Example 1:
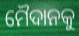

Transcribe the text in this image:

ମୈଦାନକୁ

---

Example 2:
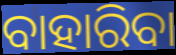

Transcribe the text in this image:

ବାହାରିବା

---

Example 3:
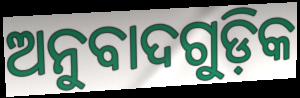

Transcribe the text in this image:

ଅନୁବାଦଗୁଡ଼ିକ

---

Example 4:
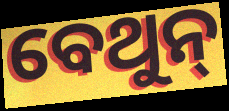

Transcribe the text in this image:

ବେଥୁନ୍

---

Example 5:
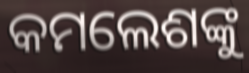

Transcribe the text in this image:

କମଲେଶଙ୍କୁ